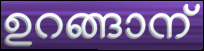
ഉറങ്ങാന്